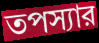
তপস্যার